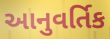
આનુવર્તિક